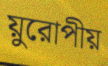
য়ুরোপীয়